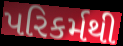
પરિકર્મથી